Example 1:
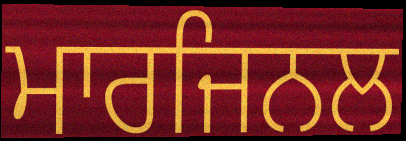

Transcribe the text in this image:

ਮਾਰਜਿਨਲ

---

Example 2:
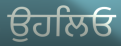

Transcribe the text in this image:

ਉਹਲਿਓ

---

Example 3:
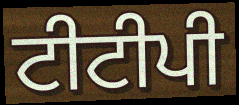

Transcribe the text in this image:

ਟੀਟੀਪੀ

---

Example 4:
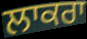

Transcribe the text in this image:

ਲਾਕਰਾ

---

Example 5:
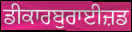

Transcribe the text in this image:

ਡੀਕਾਰਬੁਰਾਈਜ਼ਡ